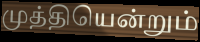
முத்தியென்றும்